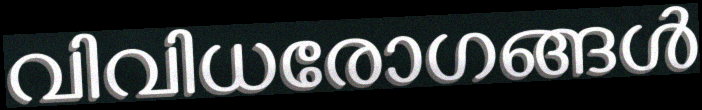
വിവിധരോഗങ്ങൾ